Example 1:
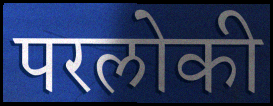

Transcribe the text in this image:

परलोकी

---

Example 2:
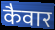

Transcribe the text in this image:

कैवार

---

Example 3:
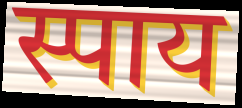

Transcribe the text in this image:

स्पाय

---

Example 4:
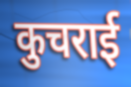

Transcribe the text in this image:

कुचराई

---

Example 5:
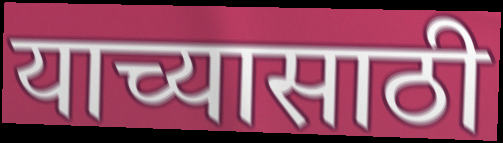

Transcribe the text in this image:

याच्यासाठी